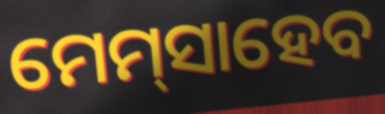
ମେମ୍‌ସାହେବ